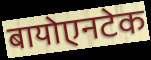
बायोएनटेक